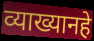
व्याख्यानहे